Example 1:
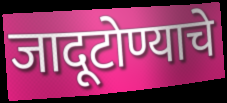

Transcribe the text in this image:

जादूटोण्याचे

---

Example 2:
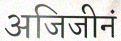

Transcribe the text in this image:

अजिजीनं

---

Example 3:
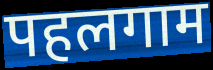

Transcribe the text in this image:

पहलगाम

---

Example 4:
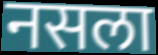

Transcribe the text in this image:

नसला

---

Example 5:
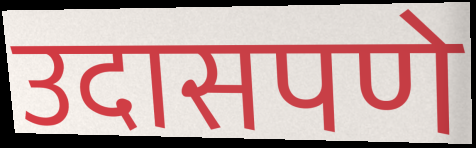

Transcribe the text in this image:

उदासपणे